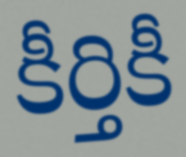
కీర్తికీ